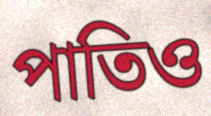
পাতিও